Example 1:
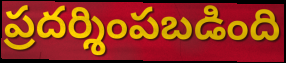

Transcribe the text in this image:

ప్రదర్శింపబడింది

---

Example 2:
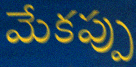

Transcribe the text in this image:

మేకప్పు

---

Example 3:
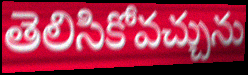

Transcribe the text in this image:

తెలిసికోవచ్చును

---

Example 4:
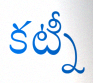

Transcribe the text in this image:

కట్నీ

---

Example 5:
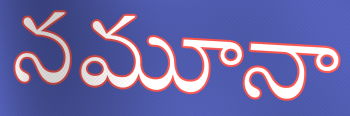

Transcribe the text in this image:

నమూనా